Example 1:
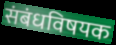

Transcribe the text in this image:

संबंधविषयक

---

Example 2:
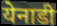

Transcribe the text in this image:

येनाडी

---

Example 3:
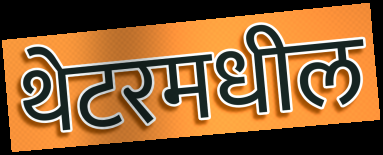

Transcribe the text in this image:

थेटरमधील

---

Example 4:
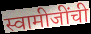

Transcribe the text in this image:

स्वामीजींची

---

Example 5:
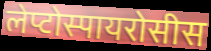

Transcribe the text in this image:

लेप्टोस्पायरोसीस